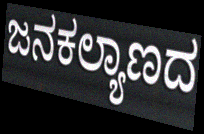
ಜನಕಲ್ಯಾಣದ